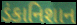
ડંકાનિશાન